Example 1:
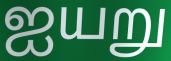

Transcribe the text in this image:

ஐயறு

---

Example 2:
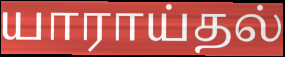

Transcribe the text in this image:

யாராய்தல்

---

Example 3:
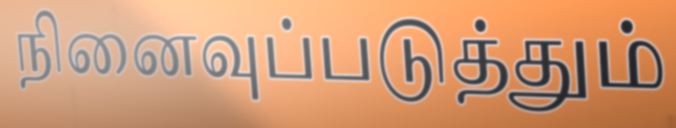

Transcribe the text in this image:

நினைவுப்படுத்தும்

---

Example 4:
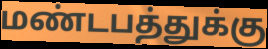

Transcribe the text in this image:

மண்டபத்துக்கு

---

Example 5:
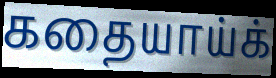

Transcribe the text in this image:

கதையாய்க்